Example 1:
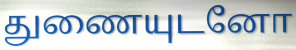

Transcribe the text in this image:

துணையுடனோ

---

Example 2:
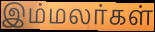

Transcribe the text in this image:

இம்மலர்கள்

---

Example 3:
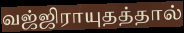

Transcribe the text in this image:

வஜ்ஜிராயுதத்தால்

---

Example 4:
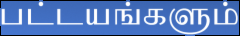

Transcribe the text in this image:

பட்டயங்களும்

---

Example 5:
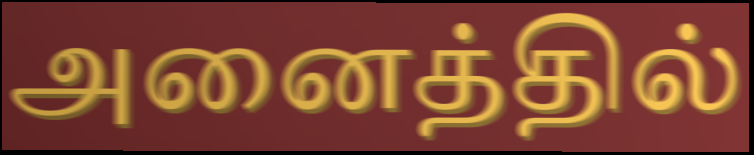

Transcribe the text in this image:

அனைத்தில்